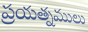
ప్రయత్నములు